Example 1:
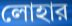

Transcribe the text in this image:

লোহার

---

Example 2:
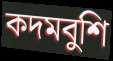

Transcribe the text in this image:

কদমবুশি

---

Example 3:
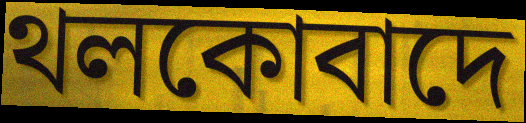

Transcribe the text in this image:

থলকোবাদে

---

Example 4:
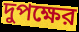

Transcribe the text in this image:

দুপক্ষের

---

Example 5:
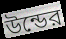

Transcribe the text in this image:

উন্ডের